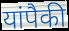
यांपैकी